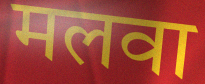
मलवा